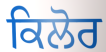
ਕਿਲੋਰ